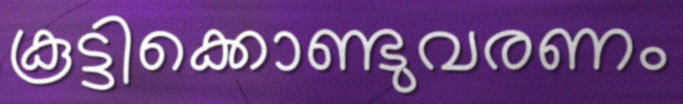
കൂട്ടിക്കൊണ്ടുവരണം